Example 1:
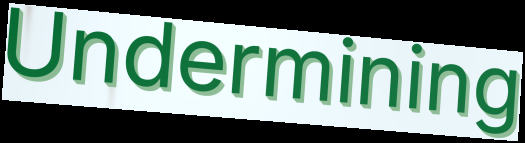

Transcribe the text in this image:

Undermining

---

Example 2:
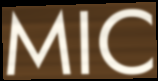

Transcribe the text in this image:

MIC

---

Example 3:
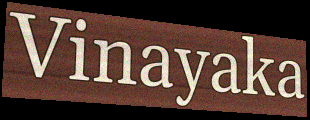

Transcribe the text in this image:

Vinayaka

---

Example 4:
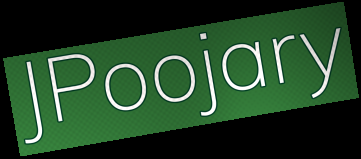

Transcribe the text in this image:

JPoojary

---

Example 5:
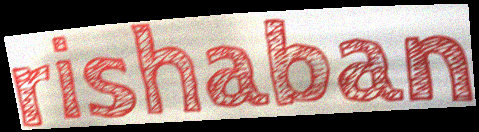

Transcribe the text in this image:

rishaban